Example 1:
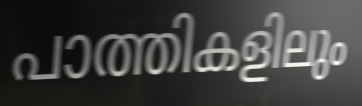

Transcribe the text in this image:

പാത്തികളിലും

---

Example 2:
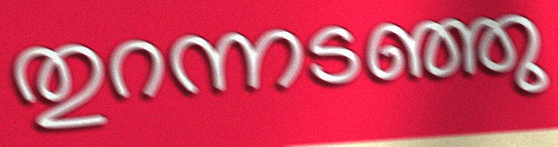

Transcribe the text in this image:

തുറന്നടഞ്ഞു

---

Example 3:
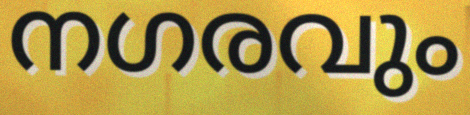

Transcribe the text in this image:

നഗരവും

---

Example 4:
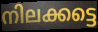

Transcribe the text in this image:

നിലക്കട്ടെ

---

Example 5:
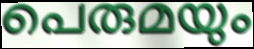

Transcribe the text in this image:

പെരുമയും